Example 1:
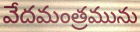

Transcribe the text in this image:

వేదమంత్రమును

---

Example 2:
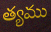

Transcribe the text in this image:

త్యము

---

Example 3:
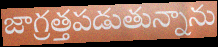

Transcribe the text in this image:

జాగ్రత్తపడుతున్నాను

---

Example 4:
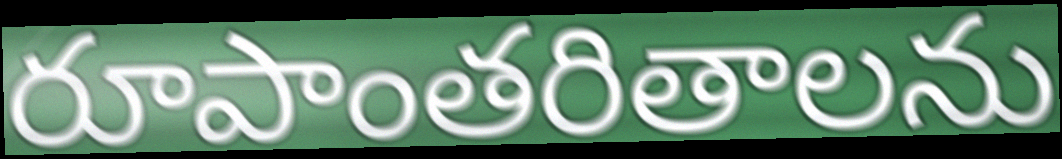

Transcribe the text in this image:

రూపాంతరితాలను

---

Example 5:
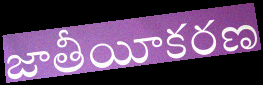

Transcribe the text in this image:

జాతీయీకరణ